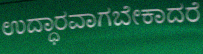
ಉದ್ಧಾರವಾಗಬೇಕಾದರೆ